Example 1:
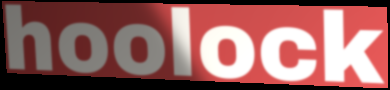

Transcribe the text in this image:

hoolock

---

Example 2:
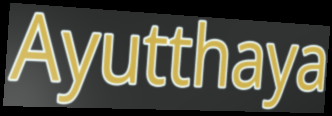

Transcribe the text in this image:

Ayutthaya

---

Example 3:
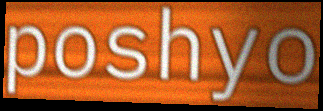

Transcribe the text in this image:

poshyo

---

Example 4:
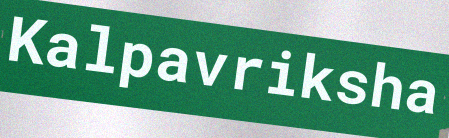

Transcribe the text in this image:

Kalpavriksha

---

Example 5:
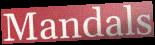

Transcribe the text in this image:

Mandals